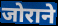
जोराने